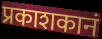
प्रकाशकानं